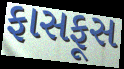
ફાસફૂસ